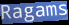
Ragams